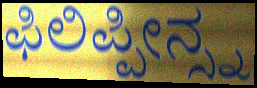
ಫಿಲಿಪ್ಪೀನ್ಸ್ನ